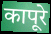
कापूरे